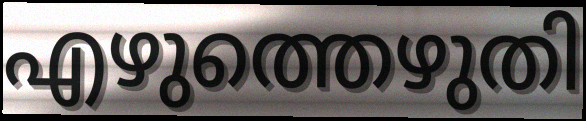
എഴുത്തെഴുതി